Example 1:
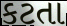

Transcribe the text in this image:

કટતા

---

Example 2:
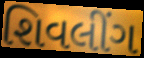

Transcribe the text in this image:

શિવલીંગ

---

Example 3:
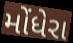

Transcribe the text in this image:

મોંધેરા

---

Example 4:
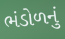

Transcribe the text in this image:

ભંડોળનું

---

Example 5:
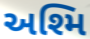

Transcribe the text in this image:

અશ્મિ